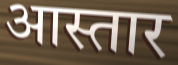
आस्तार